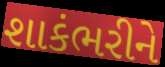
શાકંભરીને